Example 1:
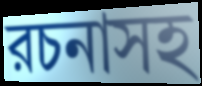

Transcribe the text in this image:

রচনাসহ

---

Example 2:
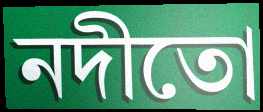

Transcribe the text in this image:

নদীতো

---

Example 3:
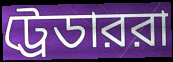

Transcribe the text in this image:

ট্রেডাররা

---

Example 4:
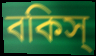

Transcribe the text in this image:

বকিস্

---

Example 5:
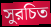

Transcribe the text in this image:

সুরচিত